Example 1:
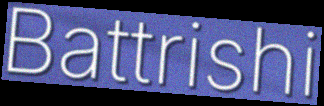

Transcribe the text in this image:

Battrishi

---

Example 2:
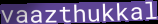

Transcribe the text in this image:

vaazthukkal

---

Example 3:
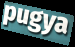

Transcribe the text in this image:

pugya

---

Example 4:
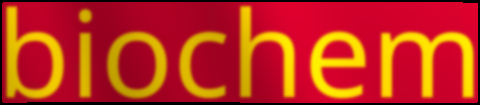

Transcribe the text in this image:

biochem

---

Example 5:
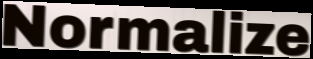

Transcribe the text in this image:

Normalize